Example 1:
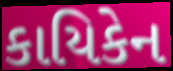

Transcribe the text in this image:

કાયિકેન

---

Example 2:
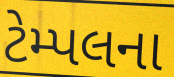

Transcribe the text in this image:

ટેમ્પલના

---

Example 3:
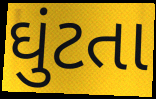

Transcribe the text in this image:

ઘુંટતા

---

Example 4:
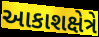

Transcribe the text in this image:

આકાશક્ષેત્રે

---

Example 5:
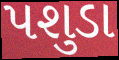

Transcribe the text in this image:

પશુડા